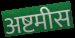
अष्टमीस